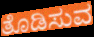
ತೊಡಿಸುವ